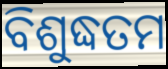
ବିଶୁଦ୍ଧତମ